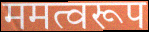
ममत्वरूप